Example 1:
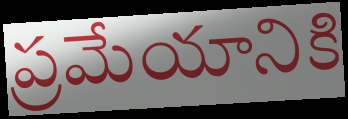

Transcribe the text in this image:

ప్రమేయానికి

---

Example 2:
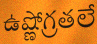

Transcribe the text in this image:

ఉష్ణోగ్రతలే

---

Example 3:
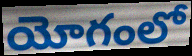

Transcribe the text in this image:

యోగంలో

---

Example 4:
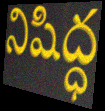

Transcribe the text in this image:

నిషిద్ధ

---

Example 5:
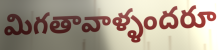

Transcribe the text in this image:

మిగతావాళ్ళందరూ